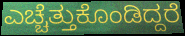
ಎಚ್ಚೆತ್ತುಕೊಂಡಿದ್ದರೆ